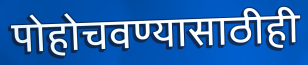
पोहोचवण्यासाठीही